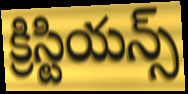
క్రిస్టియన్స్